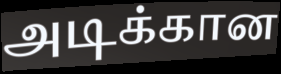
அடிக்கான